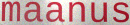
maanus